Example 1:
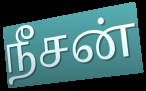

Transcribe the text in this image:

நீசன்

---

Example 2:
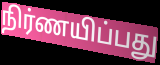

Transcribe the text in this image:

நிர்ணயிப்பது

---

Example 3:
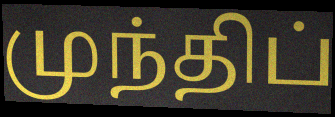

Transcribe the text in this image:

முந்திப்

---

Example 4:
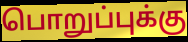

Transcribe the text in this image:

பொறுப்புக்கு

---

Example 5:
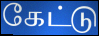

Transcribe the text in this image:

கேட்டு